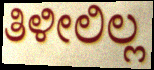
ತಿಳೀಲಿಲ್ಲ